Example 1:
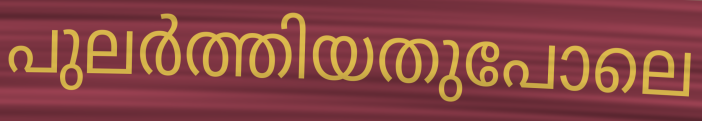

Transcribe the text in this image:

പുലർത്തിയതുപോലെ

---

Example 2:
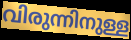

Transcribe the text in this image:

വിരുന്നിനുള്ള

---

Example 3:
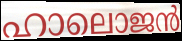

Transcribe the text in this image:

ഹാലൊജൻ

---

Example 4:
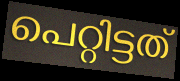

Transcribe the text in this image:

പെറ്റിട്ടത്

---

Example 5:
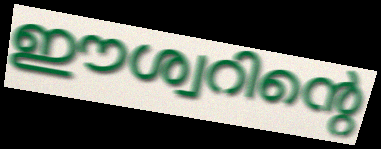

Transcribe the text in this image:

ഈശ്വറിന്റെ